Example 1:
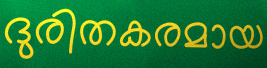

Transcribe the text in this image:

ദുരിതകരമായ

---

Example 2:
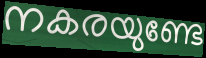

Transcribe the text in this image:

നകരയുണ്ടേ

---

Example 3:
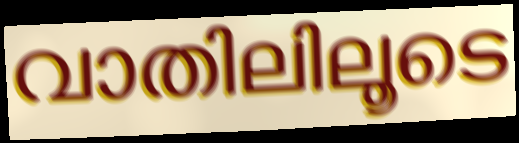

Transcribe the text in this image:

വാതിലിലൂടെ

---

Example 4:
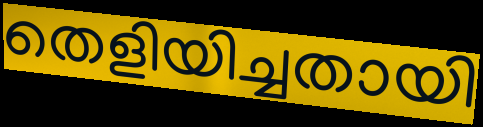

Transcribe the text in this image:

തെളിയിച്ചതായി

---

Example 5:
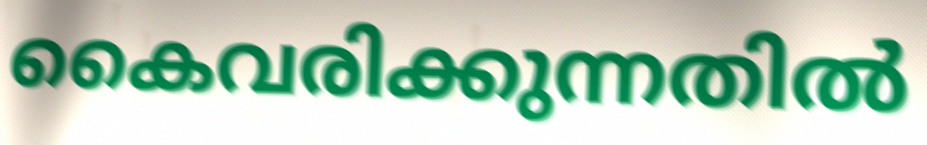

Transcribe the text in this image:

കൈവരിക്കുന്നതിൽ